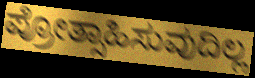
ಪ್ರೋತ್ಸಾಹಿಸುವುದಿಲ್ಲ